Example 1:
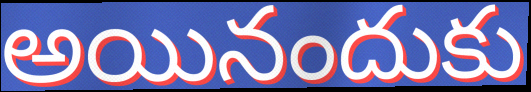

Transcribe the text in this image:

అయినందుకు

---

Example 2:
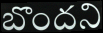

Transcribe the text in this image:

బొందని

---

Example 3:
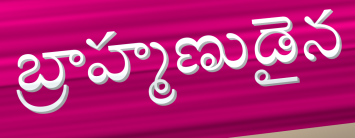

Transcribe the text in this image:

బ్రాహ్మణుడైన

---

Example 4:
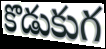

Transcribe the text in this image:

కొడుకుగ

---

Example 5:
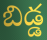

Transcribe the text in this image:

బిడ్డ